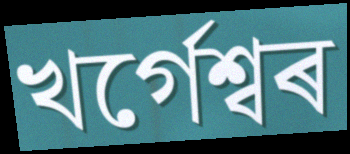
খৰ্গেশ্বৰ